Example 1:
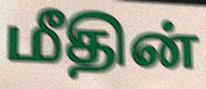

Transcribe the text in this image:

மீதின்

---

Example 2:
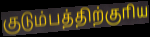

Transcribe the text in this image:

குடும்பத்திற்குரிய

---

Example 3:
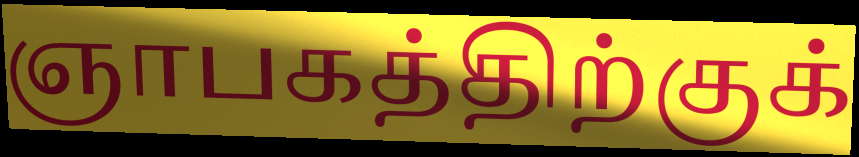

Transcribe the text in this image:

ஞாபகத்திற்குக்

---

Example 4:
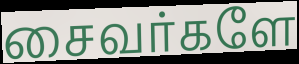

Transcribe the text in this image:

சைவர்களே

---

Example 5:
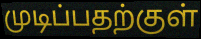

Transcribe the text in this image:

முடிப்பதற்குள்